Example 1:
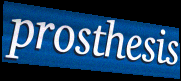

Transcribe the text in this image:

prosthesis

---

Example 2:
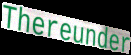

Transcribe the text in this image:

Thereunder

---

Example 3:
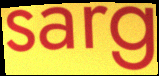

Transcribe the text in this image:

sarg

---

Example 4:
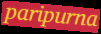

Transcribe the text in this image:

paripurna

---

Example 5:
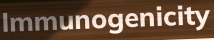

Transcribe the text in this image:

Immunogenicity